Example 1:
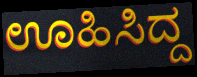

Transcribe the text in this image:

ಊಹಿಸಿದ್ದ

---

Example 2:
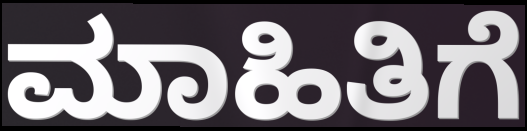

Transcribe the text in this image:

ಮಾಹಿತಿಗೆ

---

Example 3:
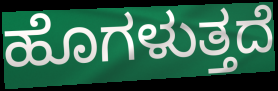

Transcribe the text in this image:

ಹೊಗಳುತ್ತದೆ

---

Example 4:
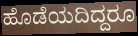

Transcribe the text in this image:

ಹೊಡೆಯದಿದ್ದರೂ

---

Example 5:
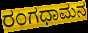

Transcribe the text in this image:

ರಂಗಧಾಮನ